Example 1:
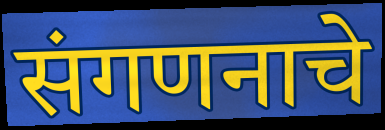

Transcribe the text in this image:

संगणनाचे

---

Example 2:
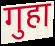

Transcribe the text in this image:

गुहा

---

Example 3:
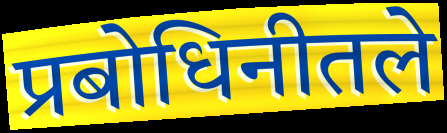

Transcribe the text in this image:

प्रबोधिनीतले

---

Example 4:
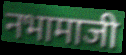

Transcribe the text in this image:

नभामाजी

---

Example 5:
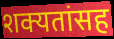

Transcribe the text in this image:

शक्यतांसह